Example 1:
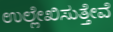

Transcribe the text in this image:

ಉಲ್ಲೇಖಿಸುತ್ತೇವೆ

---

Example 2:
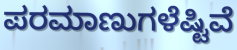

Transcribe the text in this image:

ಪರಮಾಣುಗಳೆಷ್ಟಿವೆ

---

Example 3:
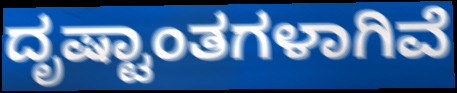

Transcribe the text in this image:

ದೃಷ್ಟಾಂತಗಳಾಗಿವೆ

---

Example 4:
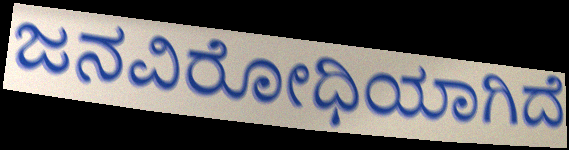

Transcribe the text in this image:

ಜನವಿರೋಧಿಯಾಗಿದೆ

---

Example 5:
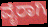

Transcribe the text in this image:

ವೈರಾಗಿ